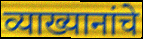
व्याख्यानांचे